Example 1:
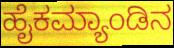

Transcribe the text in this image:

ಹೈಕಮ್ಯಾಂಡಿನ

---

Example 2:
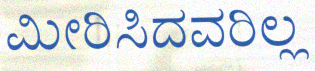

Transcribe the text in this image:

ಮೀರಿಸಿದವರಿಲ್ಲ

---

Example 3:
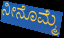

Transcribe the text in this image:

ನೀನೊಮ್ಮೆ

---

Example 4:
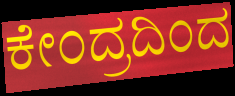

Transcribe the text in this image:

ಕೇಂದ್ರದಿಂದ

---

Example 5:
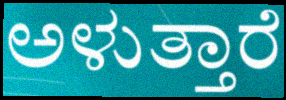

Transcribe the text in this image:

ಅಳುತ್ತಾರೆ